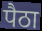
पैठा